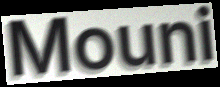
Mouni